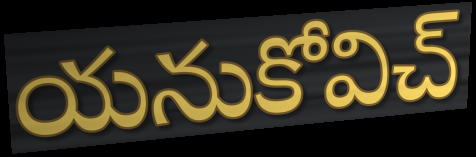
యనుకోవిచ్